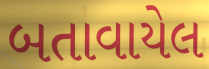
બતાવાયેલ